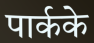
पार्कके